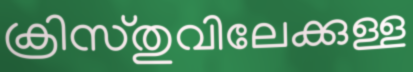
ക്രിസ്തുവിലേക്കുള്ള